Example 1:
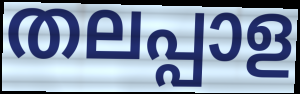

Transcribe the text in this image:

തലപ്പാള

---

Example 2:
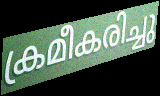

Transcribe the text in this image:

ക്രമീകരിച്ചു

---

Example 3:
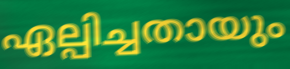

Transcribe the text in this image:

ഏല്പിച്ചതായും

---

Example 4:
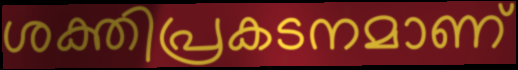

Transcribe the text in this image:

ശക്തിപ്രകടനമാണ്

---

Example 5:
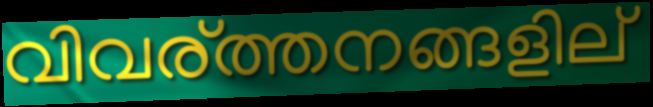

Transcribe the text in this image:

വിവര്ത്തനങ്ങളില്